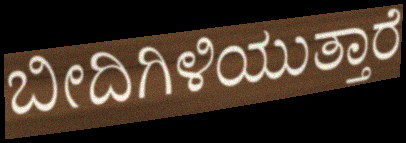
ಬೀದಿಗಿಳಿಯುತ್ತಾರೆ